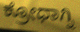
ಕ್ರೋಧಾಗ್ನಿ